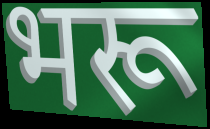
भरू